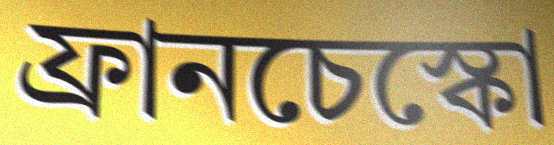
ফ্রানচেস্কো